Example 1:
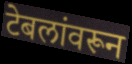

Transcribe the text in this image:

टेबलांवरून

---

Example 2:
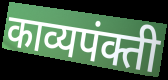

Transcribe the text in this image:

काव्यपंक्ती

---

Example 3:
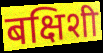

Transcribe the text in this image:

बक्षिशी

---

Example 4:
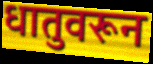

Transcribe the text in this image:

धातुवरून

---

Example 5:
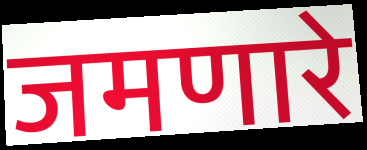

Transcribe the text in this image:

जमणारे